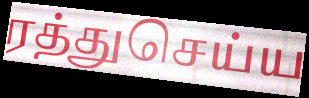
ரத்துசெய்ய